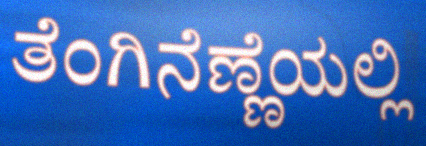
ತೆಂಗಿನೆಣ್ಣೆಯಲ್ಲಿ